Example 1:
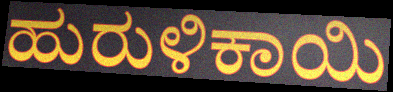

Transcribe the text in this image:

ಹುರುಳಿಕಾಯಿ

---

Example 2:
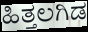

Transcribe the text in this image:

ಹಿತ್ತಲಗಿಡ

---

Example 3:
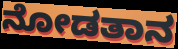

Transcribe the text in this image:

ನೋಡತಾನ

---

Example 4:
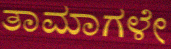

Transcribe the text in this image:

ತಾಮಾಗಳೇ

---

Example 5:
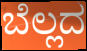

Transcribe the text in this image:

ಬೆಲ್ಲದ